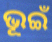
ଭୂଇଁ